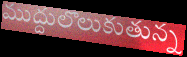
ముద్దులొలుకుతున్న